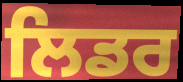
ਲਿਡਰ